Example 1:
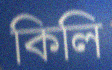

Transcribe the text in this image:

কিলি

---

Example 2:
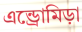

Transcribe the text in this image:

এন্ড্রোমিড়া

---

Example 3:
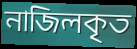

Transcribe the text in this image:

নাজিলকৃত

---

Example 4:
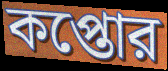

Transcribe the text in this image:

কপ্তোর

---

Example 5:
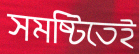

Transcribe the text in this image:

সমষ্টিতেই